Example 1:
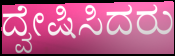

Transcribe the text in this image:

ದ್ವೇಷಿಸಿದರು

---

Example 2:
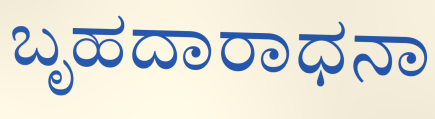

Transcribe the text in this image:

ಬೃಹದಾರಾಧನಾ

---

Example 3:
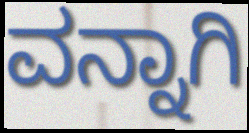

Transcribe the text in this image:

ವನ್ನಾಗಿ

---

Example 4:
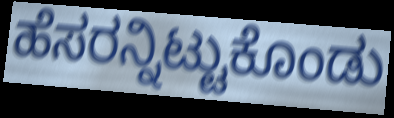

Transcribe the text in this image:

ಹೆಸರನ್ನಿಟ್ಟುಕೊಂಡು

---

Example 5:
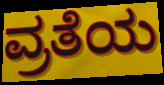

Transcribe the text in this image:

ವ್ರತೆಯ